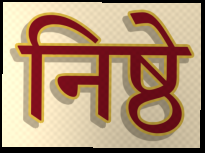
निष्ठे